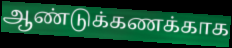
ஆண்டுக்கணக்காக